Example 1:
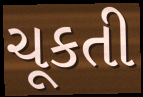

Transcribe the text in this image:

ચૂકતી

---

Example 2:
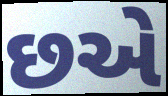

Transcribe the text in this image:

છએ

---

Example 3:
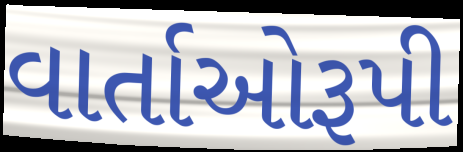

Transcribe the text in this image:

વાર્તાઓરૂપી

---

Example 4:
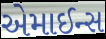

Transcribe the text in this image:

એમાઈન્સ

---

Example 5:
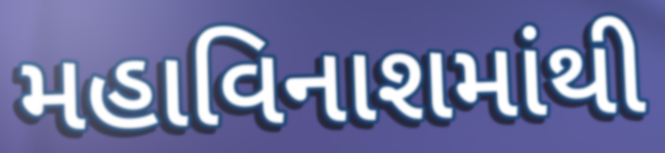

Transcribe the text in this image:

મહાવિનાશમાંથી